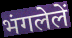
भंगलेलें